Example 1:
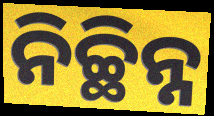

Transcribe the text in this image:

ନିଚ୍ଛିନ୍ନ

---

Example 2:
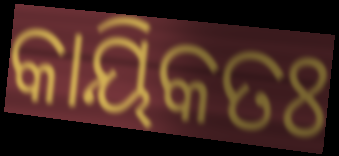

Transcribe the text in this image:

କାୟିକତଃ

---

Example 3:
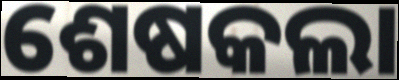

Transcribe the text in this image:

ଶେଷକଲା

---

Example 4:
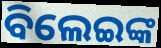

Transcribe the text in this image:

ବିଲେଇଙ୍କ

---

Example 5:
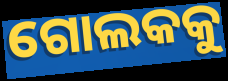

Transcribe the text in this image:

ଗୋଲକକୁ